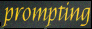
prompting